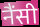
नैंसी